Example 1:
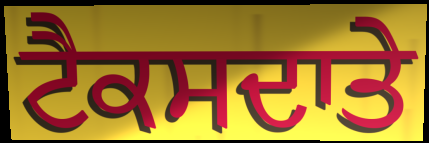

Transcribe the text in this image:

ਟੈਕਸਦਾਤੇ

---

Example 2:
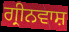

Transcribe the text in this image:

ਗ੍ਰੀਨਵਾਸ਼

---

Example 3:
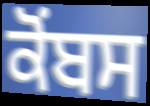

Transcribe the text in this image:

ਕੋਂਬਸ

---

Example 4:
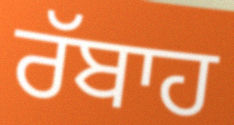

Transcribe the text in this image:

ਰੱਬਾਹ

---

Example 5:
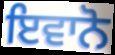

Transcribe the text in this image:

ਇਵਾਨੋ